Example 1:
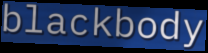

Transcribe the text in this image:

blackbody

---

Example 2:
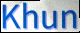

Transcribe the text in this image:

Khun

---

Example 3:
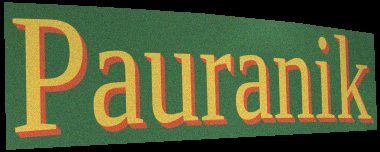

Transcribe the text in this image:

Pauranik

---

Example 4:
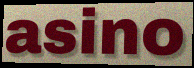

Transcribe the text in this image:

asino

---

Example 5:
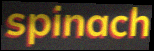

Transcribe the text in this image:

spinach